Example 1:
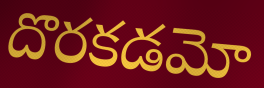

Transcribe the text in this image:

దొరకడమో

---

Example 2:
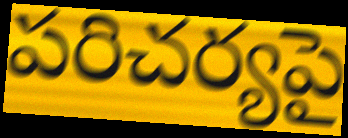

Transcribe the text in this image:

పరిచర్యపై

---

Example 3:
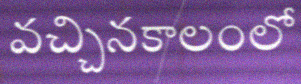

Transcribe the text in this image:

వచ్చినకాలంలో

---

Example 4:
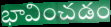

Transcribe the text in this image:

భావించడం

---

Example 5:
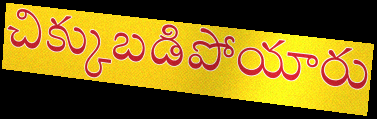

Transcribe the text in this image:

చిక్కుబడిపోయారు